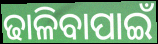
ଢାଳିବାପାଇଁ